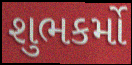
શુભકર્મો